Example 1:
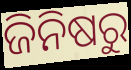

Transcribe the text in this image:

ଜିନିଷରୁ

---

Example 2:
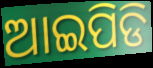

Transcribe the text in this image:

ଆଇପିଡି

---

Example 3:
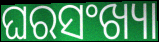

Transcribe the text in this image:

ଘରସଂଖ୍ୟା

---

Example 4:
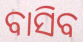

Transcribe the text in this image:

ବାସିବ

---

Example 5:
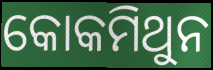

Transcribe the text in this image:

କୋକମିଥୁନ